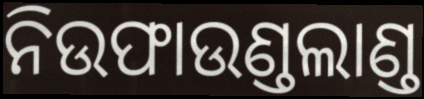
ନିଉଫାଉଣ୍ଡଲାଣ୍ଡ